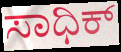
ಸಾಧಿಕ್